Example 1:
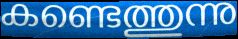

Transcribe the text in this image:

കണ്ടെത്തുന്നു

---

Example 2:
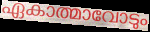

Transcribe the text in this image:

ഏകാത്മാവോടും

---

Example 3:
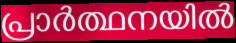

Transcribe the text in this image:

പ്രാർത്ഥനയിൽ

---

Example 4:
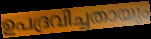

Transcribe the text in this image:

ഉപദ്രവിച്ചതായും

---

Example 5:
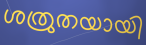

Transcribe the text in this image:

ശത്രുതയായി